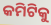
କମିଟିକୁ